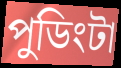
পুডিংটা